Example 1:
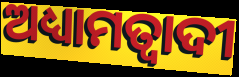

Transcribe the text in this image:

ଅଧ୍ୟାମତ୍ବାଦୀ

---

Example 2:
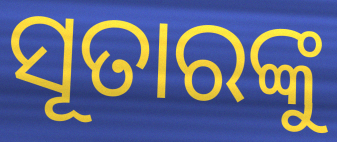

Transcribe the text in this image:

ସୂତାରଙ୍କୁ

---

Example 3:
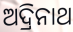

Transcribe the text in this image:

ଅଦ୍ରିନାଥ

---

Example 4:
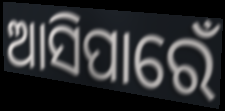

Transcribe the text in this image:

ଆସିପାରେଁ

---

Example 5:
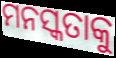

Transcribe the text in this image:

ମନସ୍କତାକୁ